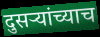
दुसऱ्यांच्याच